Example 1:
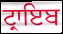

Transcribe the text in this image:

ਟ੍ਰਾਇਬ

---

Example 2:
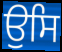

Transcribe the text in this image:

ਉਸਿ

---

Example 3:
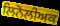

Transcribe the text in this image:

ਲਿਨੋਲੀਅਕ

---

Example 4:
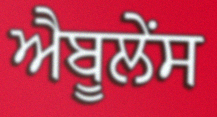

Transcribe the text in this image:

ਐਬੂਲੇਂਸ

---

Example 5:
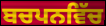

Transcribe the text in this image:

ਬਚਪਨਵਿੱਚ